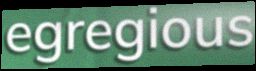
egregious